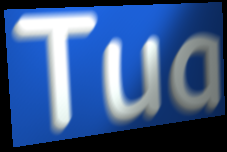
Tua